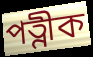
পত্নীক